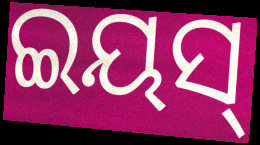
ଇୟସ୍